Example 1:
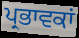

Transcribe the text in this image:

ਪ੍ਰਭਾਵਕਾਂ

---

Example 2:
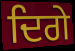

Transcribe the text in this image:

ਦਿਗੇ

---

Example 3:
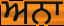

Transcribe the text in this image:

ਅਨਾ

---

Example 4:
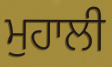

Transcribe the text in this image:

ਮੁਹਾਲੀ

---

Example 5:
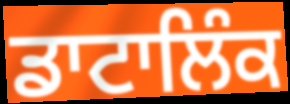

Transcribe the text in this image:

ਡਾਟਾਲਿੰਕ